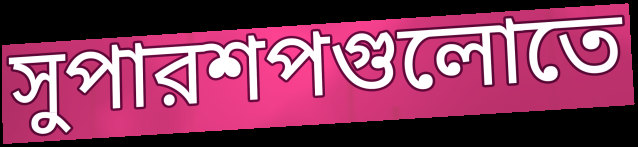
সুপারশপগুলোতে